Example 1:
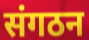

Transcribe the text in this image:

संगठन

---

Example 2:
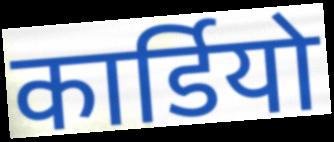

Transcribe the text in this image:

कार्डियो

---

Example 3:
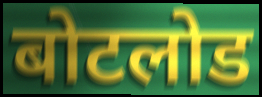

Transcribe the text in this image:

बोटलोड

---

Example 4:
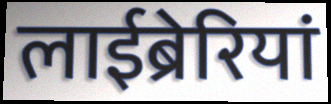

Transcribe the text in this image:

लाईब्रेरियां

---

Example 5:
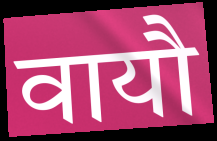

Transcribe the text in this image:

वायौ